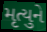
મૃત્યુને